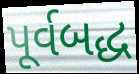
પૂર્વબદ્ધ